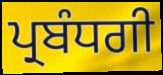
ਪ੍ਰਬੰਧਗੀ